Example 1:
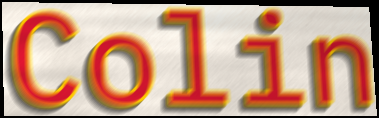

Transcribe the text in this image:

Colin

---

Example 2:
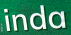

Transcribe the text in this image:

inda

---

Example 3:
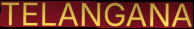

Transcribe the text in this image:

TELANGANA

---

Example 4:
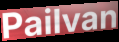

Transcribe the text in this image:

Pailvan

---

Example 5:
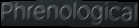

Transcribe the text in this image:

Phrenological